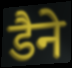
डैने